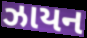
ઝાયન